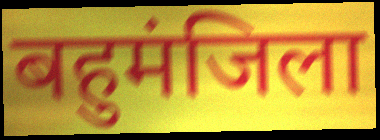
बहुमंजिला